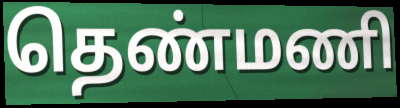
தெண்மணி